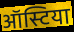
ऑस्टिया